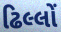
ઢિલ્લોં